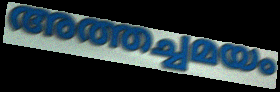
അത്തച്ചമയം